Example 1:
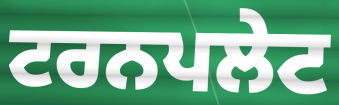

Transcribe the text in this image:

ਟਰਨਪਲੇਟ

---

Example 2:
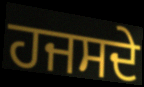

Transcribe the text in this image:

ਹਜਸਦੇ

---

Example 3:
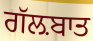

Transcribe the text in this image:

ਗੱਲ਼ਬਾਤ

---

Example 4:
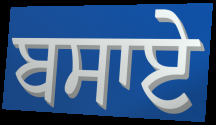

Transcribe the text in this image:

ਬਸਾਏ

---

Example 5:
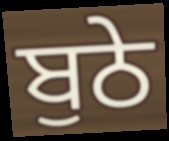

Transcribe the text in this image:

ਬੁਠੇ